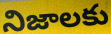
నిజాలకు